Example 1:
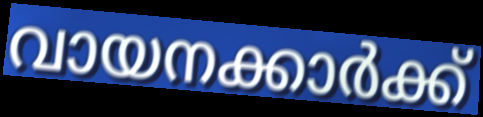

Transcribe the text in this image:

വായനക്കാർക്ക്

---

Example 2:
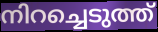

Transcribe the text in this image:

നിറച്ചെടുത്ത്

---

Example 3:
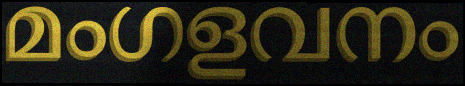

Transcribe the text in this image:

മംഗളവനം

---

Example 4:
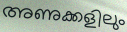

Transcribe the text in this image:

അണുക്കളിലും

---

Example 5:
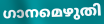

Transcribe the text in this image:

ഗാനമെഴുതി